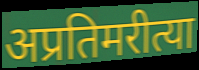
अप्रतिमरीत्या